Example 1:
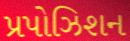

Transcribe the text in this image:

પ્રપોઝિશન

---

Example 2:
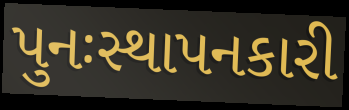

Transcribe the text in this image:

પુનઃસ્થાપનકારી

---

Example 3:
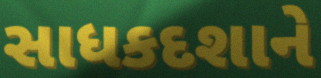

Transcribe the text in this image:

સાધકદશાને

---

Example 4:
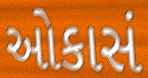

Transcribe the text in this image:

ઓકાસં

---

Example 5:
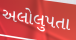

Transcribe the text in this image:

અલોલુપતા